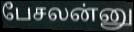
பேசலன்னு